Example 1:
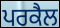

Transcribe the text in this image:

ਪਰਕੈਲ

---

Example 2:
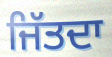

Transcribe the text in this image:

ਜਿੱਤਦਾ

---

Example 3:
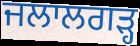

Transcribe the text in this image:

ਜਲਾਲਗੜ੍ਹ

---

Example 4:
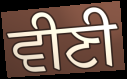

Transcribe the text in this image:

ਵੀਣੀ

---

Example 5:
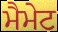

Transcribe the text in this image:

ਮੈਮੇਟ